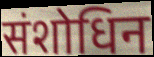
संशोधिन